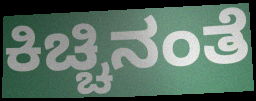
ಕಿಚ್ಚಿನಂತೆ